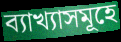
ব্যাখ্যাসমূহে